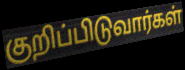
குறிப்பிடுவார்கள்